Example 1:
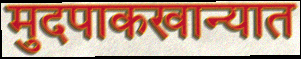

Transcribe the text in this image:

मुदपाकखान्यात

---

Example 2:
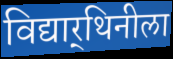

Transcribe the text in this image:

विद्यार्थिनीला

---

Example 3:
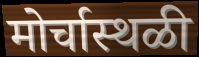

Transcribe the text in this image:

मोर्चास्थळी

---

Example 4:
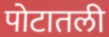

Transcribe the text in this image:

पोटातली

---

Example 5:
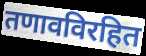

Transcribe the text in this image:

तणावविरहित